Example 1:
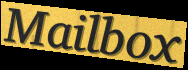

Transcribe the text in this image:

Mailbox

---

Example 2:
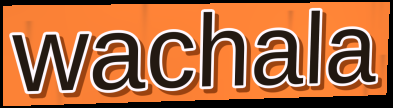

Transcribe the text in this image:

wachala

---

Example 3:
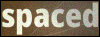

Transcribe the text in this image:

spaced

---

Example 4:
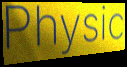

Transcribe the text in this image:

Physic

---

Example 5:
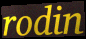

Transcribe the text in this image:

rodin